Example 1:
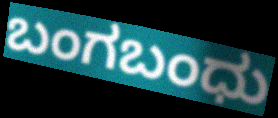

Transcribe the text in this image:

ಬಂಗಬಂಧು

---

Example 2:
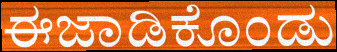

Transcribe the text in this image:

ಈಜಾಡಿಕೊಂಡು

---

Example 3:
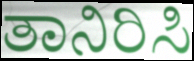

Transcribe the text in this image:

ತಾನಿರಿಸಿ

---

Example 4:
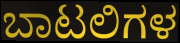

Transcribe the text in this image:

ಬಾಟಲಿಗಳ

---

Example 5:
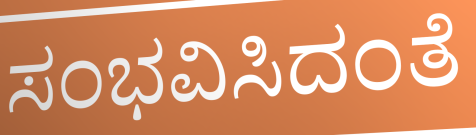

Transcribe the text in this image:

ಸಂಭವಿಸಿದಂತೆ